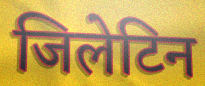
जिलेटिन